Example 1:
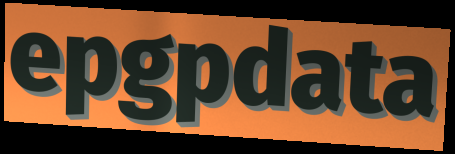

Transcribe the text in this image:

epgpdata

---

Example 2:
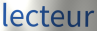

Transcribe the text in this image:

lecteur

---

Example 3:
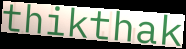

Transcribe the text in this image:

thikthak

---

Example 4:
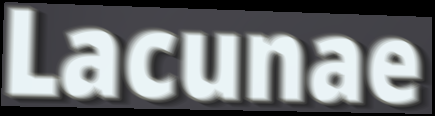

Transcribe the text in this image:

Lacunae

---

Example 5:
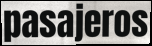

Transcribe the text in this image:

pasajeros